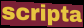
scripta